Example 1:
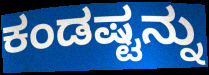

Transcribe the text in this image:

ಕಂಡಷ್ಟನ್ನು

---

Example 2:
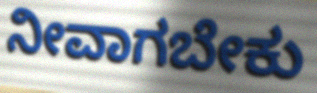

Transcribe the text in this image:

ನೀವಾಗಬೇಕು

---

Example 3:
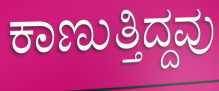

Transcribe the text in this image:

ಕಾಣುತ್ತಿದ್ದವು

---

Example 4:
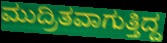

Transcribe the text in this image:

ಮುದ್ರಿತವಾಗುತ್ತಿದ್ದ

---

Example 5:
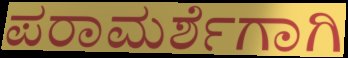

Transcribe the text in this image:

ಪರಾಮರ್ಶೆಗಾಗಿ